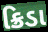
ક્રિડા